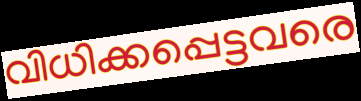
വിധിക്കപ്പെട്ടവരെ